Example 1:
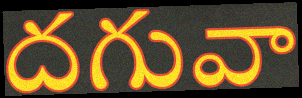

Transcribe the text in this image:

దగువా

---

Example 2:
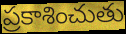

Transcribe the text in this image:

ప్రకాశించుతు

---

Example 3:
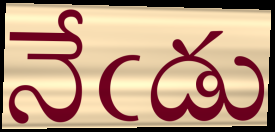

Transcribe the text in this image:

నేఁడు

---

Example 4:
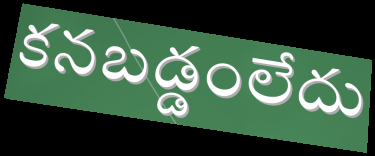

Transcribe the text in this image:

కనబడ్డంలేదు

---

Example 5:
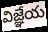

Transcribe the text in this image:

విజ్ఞేయ